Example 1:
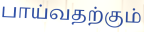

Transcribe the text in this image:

பாய்வதற்கும்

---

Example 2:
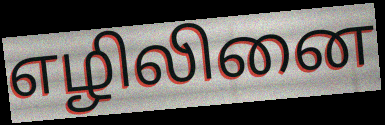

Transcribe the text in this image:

எழிலினை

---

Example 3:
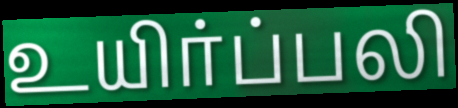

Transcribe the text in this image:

உயிர்ப்பலி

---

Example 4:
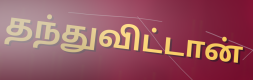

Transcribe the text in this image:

தந்துவிட்டான்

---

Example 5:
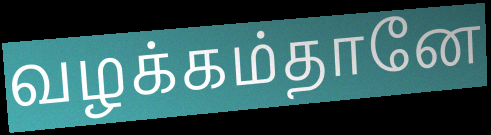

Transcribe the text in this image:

வழக்கம்தானே